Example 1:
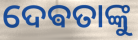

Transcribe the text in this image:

ଦେଵତାଙ୍କୁ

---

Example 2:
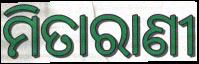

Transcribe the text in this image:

ମିତାରାଣୀ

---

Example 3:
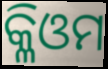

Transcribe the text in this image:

କ୍ଳିଓମ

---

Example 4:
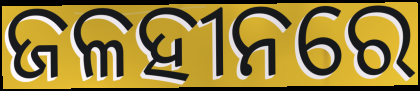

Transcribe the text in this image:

ଜଳହୀନରେ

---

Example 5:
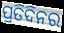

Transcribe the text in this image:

ପ୍ରତିଦିନର